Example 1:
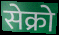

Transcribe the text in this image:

सेक्रो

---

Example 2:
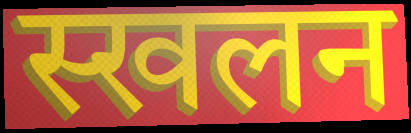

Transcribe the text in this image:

स्‍खलन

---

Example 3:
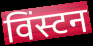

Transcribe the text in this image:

विंस्टन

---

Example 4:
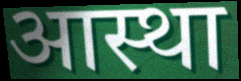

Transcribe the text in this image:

आस्‍था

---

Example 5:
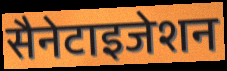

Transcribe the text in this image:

सैनेटाइजेशन